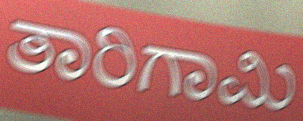
ತಾರಿಗಾಮಿ